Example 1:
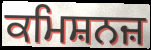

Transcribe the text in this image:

ਕਮਿਸ਼ਨਜ਼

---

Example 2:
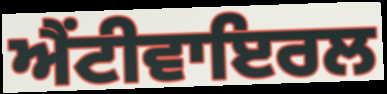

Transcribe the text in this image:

ਐਂਟੀਵਾਇਰਲ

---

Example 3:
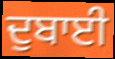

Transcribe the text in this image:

ਦੁਬਾਈ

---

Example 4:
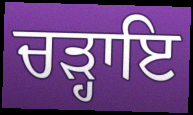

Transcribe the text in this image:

ਚੜ੍ਹਾਇ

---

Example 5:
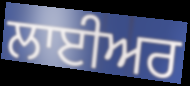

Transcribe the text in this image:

ਲਾਈਅਰ